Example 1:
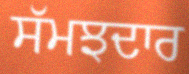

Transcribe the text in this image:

ਸੱਮਝਦਾਰ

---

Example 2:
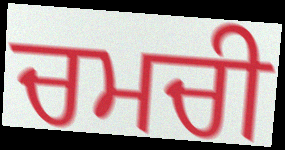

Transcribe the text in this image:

ਚਮਚੀ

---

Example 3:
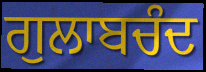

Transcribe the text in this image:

ਗੁਲਾਬਚੰਦ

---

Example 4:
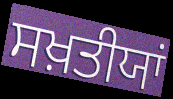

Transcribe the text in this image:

ਸਖ਼ਤੀਯਾਂ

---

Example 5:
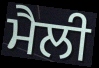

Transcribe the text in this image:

ਮੈਲੀ